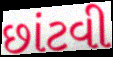
છાંટવી